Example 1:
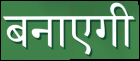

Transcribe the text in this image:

बनाएगी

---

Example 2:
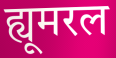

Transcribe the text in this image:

ह्यूमरल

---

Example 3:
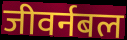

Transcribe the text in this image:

जीवर्नबल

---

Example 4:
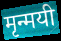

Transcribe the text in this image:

मृन्मयी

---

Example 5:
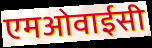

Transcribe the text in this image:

एमओवाईसी